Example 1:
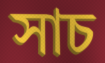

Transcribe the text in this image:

সাচ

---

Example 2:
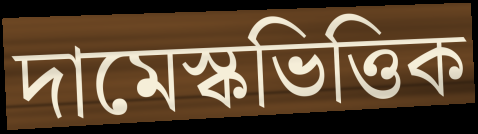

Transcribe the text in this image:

দামেস্কভিত্তিক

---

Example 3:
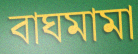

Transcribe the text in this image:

বাঘমামা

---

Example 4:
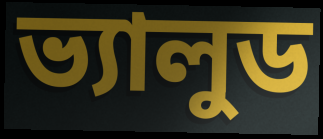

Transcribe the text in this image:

ভ্যালুড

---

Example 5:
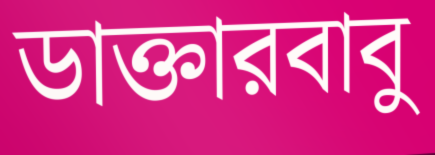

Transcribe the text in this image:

ডাক্তারবাবু